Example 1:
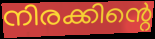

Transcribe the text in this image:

നിരക്കിന്റെ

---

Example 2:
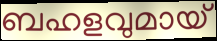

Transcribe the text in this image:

ബഹളവുമായ്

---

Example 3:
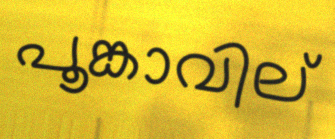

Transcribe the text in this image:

പൂങ്കാവില്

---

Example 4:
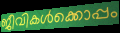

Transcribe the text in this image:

ജീവികൾക്കൊപ്പം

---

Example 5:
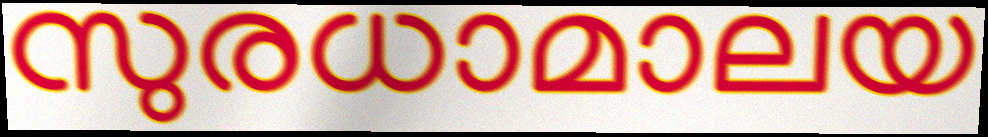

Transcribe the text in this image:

സുരധാമാലയ